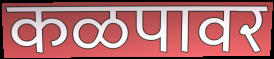
कळपावर